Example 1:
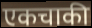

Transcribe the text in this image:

एकचाकी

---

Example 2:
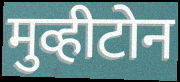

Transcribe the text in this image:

मुव्हीटोन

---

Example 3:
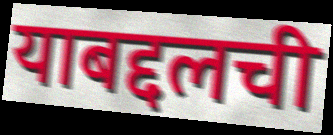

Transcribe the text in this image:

याबद्दलची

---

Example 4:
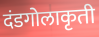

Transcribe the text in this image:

दंडगोलाकृती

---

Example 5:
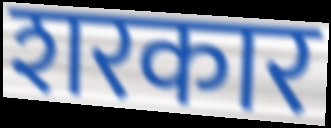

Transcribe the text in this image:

शरकार